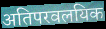
अतिपरवलयिक